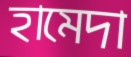
হামেদা